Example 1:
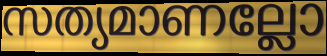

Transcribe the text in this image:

സത്യമാണല്ലോ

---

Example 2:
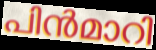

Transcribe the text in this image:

പിൻമാറി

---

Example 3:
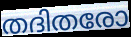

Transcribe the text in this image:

തദിതരോ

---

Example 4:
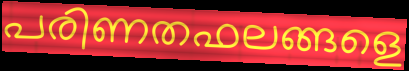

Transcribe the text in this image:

പരിണതഫലങ്ങളെ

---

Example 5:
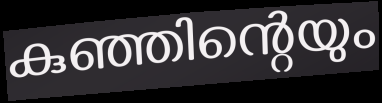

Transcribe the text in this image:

കുഞ്ഞിന്റെയും